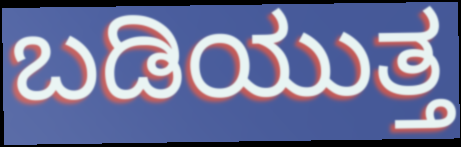
ಬಡಿಯುತ್ತ